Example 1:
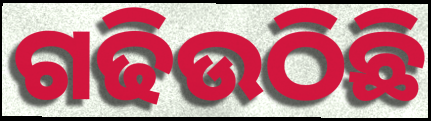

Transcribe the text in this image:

ଗଢିଉଠିଛି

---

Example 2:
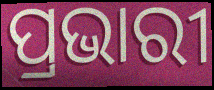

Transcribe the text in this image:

ପ୍ରଭାରୀ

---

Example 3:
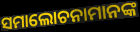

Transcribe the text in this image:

ସମାଲୋଚନାମାନଙ୍କ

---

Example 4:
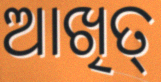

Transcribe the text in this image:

ଆଖିତ୍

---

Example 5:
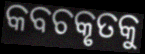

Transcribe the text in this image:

କବଚକୃତକୁ